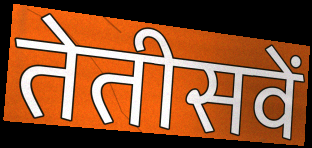
तेतीसवें